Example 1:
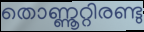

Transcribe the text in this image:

തൊണ്ണൂറ്റിരണ്ടു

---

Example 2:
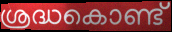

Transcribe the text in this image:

ശ്രദ്ധകൊണ്ട്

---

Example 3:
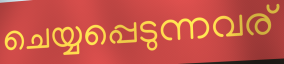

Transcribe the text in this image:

ചെയ്യപ്പെടുന്നവര്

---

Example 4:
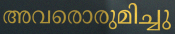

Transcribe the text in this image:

അവരൊരുമിച്ചു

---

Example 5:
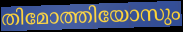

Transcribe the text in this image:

തിമോത്തിയോസും